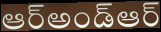
ఆర్అండ్ఆర్